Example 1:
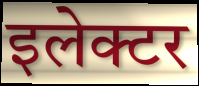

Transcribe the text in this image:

इलेक्टर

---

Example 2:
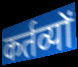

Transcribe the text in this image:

कर्तव्यों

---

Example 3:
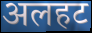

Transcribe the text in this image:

अलहट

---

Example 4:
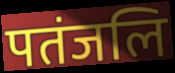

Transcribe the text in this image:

पतंजलि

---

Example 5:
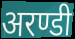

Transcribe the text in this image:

अरण्डी